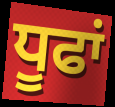
ਧੂਫਾਂ